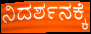
ನಿದರ್ಶನಕ್ಕೆ